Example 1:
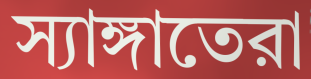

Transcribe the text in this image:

স্যাঙ্গাতেরা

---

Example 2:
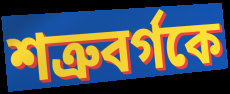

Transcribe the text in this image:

শত্রুবর্গকে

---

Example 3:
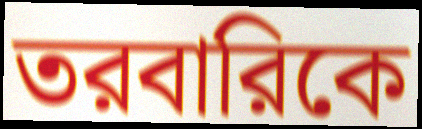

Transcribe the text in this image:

তরবারিকে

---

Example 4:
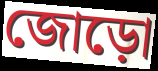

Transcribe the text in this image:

জোড়ো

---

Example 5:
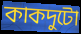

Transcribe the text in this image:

কাকদুটো